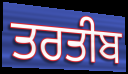
ਤਰਤੀਬ